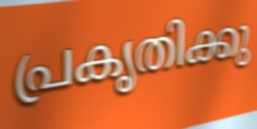
പ്രകൃതിക്കു